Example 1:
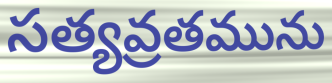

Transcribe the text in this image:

సత్యవ్రతమును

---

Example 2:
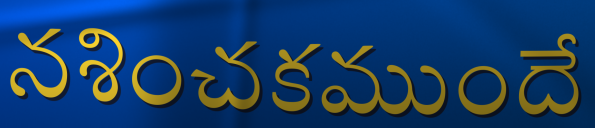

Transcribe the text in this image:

నశించకముందే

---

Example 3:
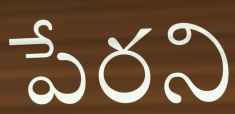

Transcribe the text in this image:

పేరని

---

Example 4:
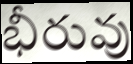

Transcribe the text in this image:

భీరువు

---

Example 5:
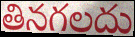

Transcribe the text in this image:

తినగలదు